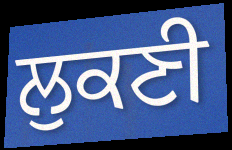
ਲੁਕਣੀ